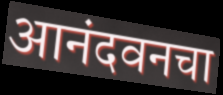
आनंदवनचा